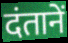
दंतानें